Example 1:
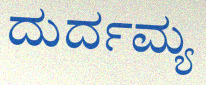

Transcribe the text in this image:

ದುರ್ದಮ್ಯ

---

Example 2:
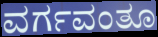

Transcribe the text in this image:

ವರ್ಗವಂತೂ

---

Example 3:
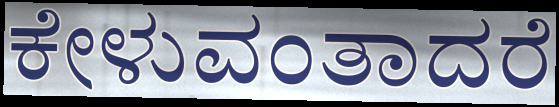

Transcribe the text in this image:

ಕೇಳುವಂತಾದರೆ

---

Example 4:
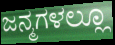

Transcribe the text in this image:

ಜನ್ಮಗಳಲ್ಲೂ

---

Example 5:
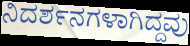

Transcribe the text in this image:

ನಿದರ್ಶನಗಳಾಗಿದ್ದವು